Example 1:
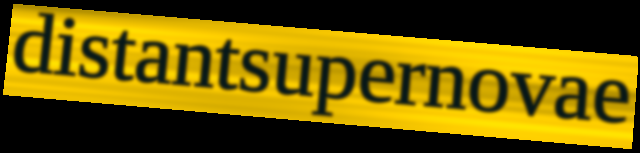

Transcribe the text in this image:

distantsupernovae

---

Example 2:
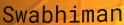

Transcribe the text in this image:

Swabhiman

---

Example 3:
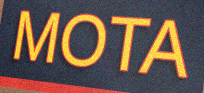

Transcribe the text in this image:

MOTA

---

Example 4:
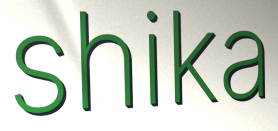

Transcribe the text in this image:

shika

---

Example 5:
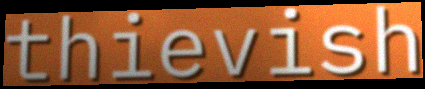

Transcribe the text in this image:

thievish